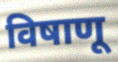
विषाणू